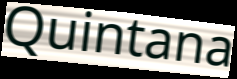
Quintana